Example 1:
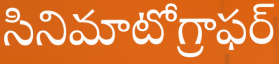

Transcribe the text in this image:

సినిమాటోగ్రాఫర్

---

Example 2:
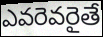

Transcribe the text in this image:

ఎవరెవరైతే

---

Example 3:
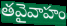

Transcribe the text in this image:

తవైవాహం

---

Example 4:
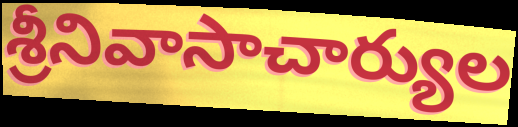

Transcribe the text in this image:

శ్రీనివాసాచార్యుల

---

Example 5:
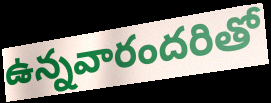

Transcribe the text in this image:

ఉన్నవారందరితో